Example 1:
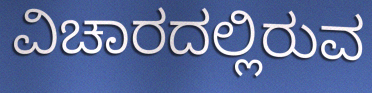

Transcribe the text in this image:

ವಿಚಾರದಲ್ಲಿರುವ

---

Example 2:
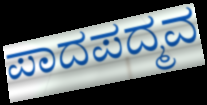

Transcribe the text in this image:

ಪಾದಪದ್ಮವ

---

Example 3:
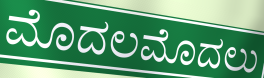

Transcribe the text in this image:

ಮೊದಲಮೊದಲು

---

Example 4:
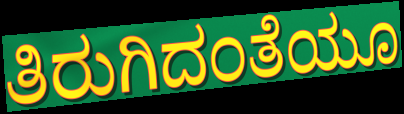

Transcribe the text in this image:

ತಿರುಗಿದಂತೆಯೂ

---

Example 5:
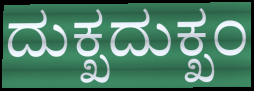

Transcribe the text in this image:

ದುಕ್ಖದುಕ್ಖಂ